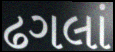
ઢગલાં